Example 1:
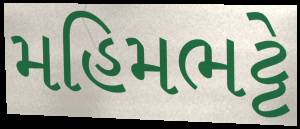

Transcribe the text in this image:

મહિમભટ્ટે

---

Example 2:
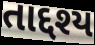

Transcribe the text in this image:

તાદ્દશ્ય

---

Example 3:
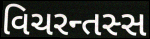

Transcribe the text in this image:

વિચરન્તસ્સ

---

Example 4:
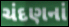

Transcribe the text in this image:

ચંદણનાં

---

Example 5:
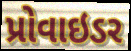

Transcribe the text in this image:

પ્રોવાઇડર